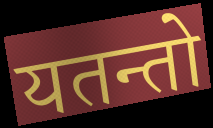
यतन्तो